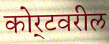
कोर्टवरील